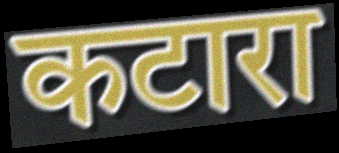
कटारा